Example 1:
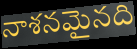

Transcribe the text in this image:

నాశనమైనది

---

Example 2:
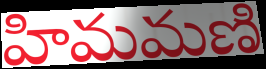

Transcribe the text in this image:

హిమమణి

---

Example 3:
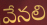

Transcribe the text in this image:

వేనలి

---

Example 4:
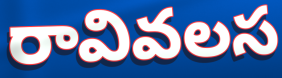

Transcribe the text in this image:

రావివలస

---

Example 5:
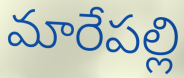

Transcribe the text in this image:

మారేపల్లి